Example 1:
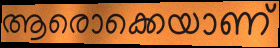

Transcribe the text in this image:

ആരൊക്കെയാണ്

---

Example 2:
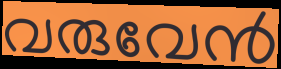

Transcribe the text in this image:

വരുവേൻ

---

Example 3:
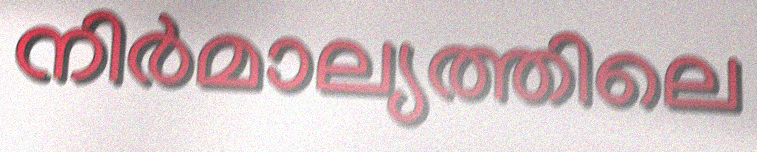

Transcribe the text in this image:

നിർമാല്യത്തിലെ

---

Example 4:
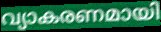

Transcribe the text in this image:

വ്യാകരണമായി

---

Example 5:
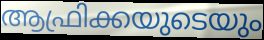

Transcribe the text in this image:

ആഫ്രിക്കയുടെയും